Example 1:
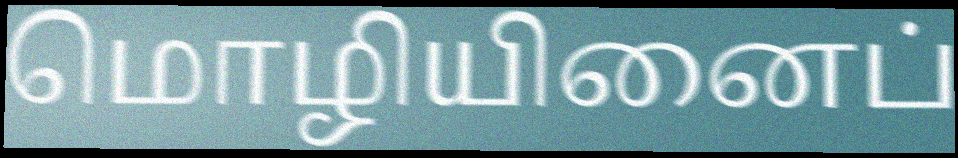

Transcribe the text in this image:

மொழியினைப்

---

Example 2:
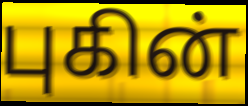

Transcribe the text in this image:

புகின்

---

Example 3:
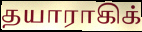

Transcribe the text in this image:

தயாராகிக்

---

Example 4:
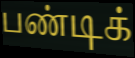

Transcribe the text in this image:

பண்டிக்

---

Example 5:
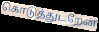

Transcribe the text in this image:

கொடுத்துடறேன்